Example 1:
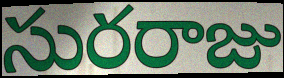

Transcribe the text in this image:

సురరాజు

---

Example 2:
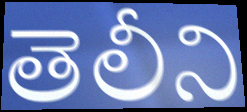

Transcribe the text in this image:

తెలీని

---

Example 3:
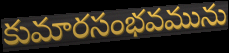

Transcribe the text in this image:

కుమారసంభవమును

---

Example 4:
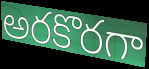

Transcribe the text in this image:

అరకొరగా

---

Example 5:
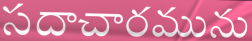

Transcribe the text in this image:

సదాచారమును